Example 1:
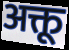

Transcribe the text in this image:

अक्तू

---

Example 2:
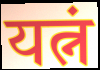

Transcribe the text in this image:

यत्नं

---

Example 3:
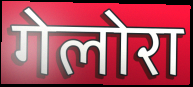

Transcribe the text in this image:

गेलोरा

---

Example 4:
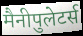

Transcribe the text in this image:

मैनीपुलेटर्स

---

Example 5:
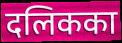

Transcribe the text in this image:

दलिकका